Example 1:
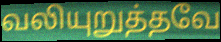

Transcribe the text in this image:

வலியுறுத்தவே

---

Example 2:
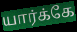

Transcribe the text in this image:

யார்க்கே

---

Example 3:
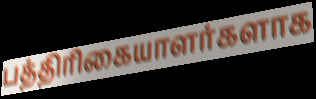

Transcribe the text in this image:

பத்திரிகையாளர்களாக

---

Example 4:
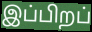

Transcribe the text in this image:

இப்பிறப்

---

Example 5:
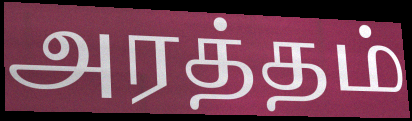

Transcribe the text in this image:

அரத்தம்